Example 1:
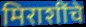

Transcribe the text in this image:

मिराशींचे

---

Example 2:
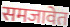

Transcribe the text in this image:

समजावेत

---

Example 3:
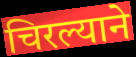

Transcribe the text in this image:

चिरल्याने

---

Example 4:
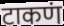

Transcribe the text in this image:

टाकणं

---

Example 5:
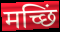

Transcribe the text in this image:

मच्छिं